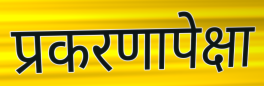
प्रकरणापेक्षा